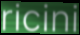
ricini